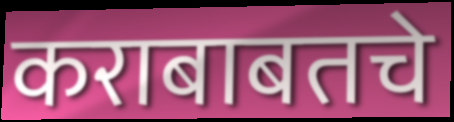
कराबाबतचे